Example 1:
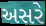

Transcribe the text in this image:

અસરે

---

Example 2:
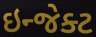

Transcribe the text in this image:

ઇન્જેક્ટ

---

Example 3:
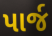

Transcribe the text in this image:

પાર્જ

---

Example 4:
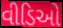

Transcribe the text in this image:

વીડિઓ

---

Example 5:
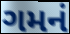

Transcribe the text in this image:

ગમનં